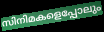
സിനിമകളെപ്പോലും